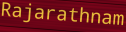
Rajarathnam